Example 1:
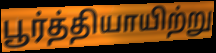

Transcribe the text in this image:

பூர்த்தியாயிற்று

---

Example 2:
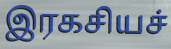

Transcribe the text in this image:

இரகசியச்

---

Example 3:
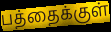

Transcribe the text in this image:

பத்தைக்குள்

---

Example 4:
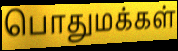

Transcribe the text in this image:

பொதுமக்கள்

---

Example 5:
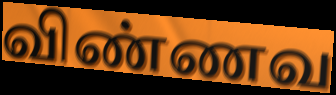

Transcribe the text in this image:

விண்ணவ